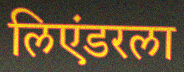
लिएंडरला